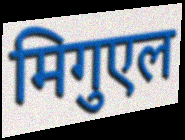
मिगुएल